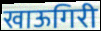
खाऊगिरी